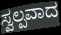
ಸ್ವಲ್ಪವಾದ